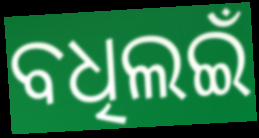
ବଧିଲଇଁ